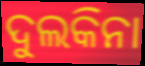
ଦୁଲକିନା